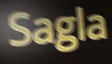
Sagla